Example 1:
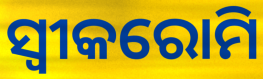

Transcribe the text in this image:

ସ୍ଵୀକରୋମି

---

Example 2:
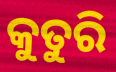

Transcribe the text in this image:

କୁତୁରି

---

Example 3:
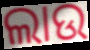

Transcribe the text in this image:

ଲାଉ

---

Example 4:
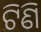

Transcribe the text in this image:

ଟିଣି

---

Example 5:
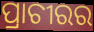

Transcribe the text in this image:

ପ୍ରାଚୀରର